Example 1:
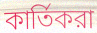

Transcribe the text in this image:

কার্তিকরা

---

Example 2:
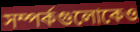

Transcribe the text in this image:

সম্পর্কগুলোকেও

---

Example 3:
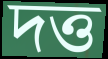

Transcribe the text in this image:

দত্ত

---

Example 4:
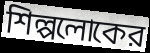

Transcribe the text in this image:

শিল্পলোকের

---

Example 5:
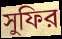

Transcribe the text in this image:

সুফির